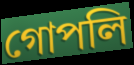
গোপলি